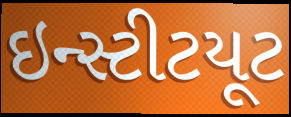
ઇન્સ્ટીટયૂટ